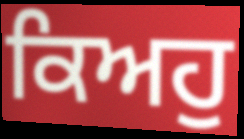
ਕਿਅਹੁ